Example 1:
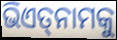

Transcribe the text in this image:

ଭିଏତ୍‌ନାମକୁ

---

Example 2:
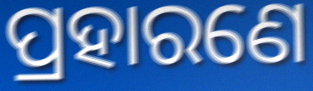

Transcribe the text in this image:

ପ୍ରହାରଣେ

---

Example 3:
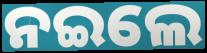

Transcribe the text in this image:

ନଇଲେ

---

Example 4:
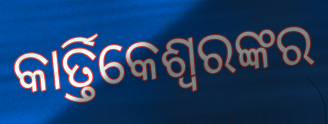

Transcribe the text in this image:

କାର୍ତ୍ତିକେଶ୍ୱରଙ୍କର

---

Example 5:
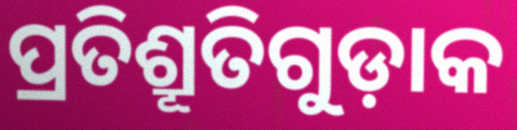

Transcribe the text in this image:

ପ୍ରତିଶ୍ରୂତିଗୁଡ଼ାକ